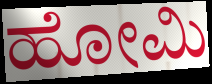
ಹೋಮಿ